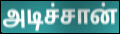
அடிச்சான்